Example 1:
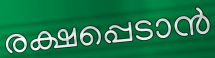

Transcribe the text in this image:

രക്ഷപ്പെടാൻ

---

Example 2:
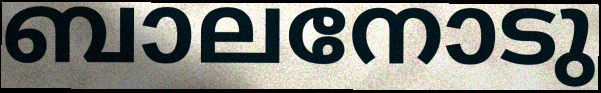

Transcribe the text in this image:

ബാലനോടു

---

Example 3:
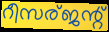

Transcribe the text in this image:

റീസര്ജന്റ്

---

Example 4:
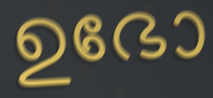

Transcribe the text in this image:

ഉഭോ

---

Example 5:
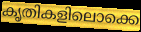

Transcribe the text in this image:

കൃതികളിലൊക്കെ